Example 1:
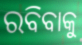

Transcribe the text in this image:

ରବିବାକୁ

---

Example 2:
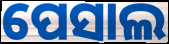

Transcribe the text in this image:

ପେସାଲ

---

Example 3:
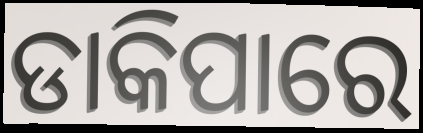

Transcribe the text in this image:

ଡାକିପାରେ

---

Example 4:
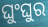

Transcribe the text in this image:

ଘୁଂଘୁର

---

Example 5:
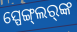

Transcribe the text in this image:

ସ୍ପେଙ୍ଗ୍‌ଲର୍‌ଙ୍କ